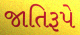
જાતિરૂપે